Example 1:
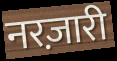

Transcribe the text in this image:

नरज़ारी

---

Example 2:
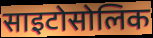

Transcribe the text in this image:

साइटोसोलिक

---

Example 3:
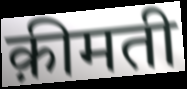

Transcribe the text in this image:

क़ीमती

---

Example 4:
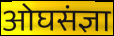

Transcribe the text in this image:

ओघसंज्ञा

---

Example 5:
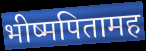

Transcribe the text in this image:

भीष्मपितामह